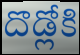
దొడ్లోకి